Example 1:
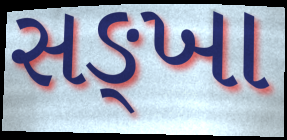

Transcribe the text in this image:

સઙ્ખા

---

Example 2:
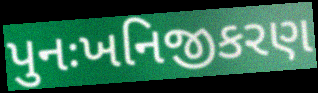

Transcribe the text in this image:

પુનઃખનિજીકરણ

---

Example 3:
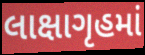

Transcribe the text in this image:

લાક્ષાગૃહમાં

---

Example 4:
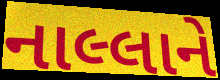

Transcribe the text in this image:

નાલ્લાને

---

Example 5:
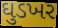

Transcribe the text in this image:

ઘુડખર